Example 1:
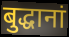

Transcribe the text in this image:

बुद्धानां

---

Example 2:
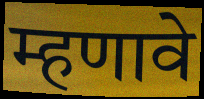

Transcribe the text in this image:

म्हणावे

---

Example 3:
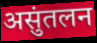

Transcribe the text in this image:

असुंतलन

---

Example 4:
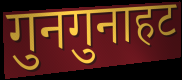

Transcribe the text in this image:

गुनगुनाहट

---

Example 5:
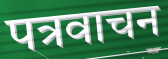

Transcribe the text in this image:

पत्रवाचन